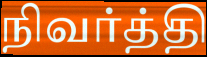
நிவர்த்தி